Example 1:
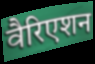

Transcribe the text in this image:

वैरिएशन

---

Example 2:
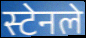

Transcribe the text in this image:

स्टेनले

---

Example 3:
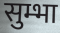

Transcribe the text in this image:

सुम्भा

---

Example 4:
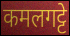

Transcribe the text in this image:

कमलगट्टे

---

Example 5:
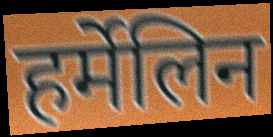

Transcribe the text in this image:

हर्मेलिन